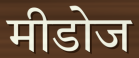
मीडोज